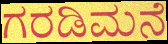
ಗರಡಿಮನೆ